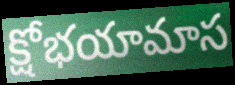
క్షోభయామాస